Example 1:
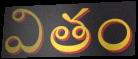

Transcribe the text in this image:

వితం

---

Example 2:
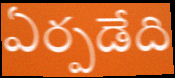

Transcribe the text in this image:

ఏర్పడేది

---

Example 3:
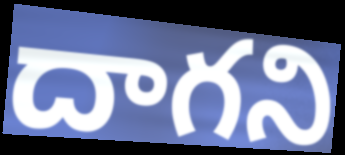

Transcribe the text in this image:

దాగని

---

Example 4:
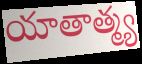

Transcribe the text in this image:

యాతాత్మ్య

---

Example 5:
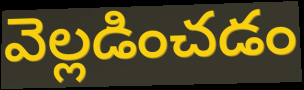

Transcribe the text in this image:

వెల్లడించడం